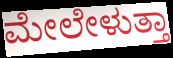
ಮೇಲೇಳುತ್ತಾ